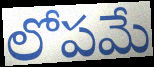
లోపమే